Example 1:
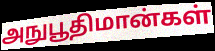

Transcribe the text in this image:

அநுபூதிமான்கள்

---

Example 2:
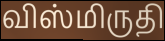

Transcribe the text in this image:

விஸ்மிருதி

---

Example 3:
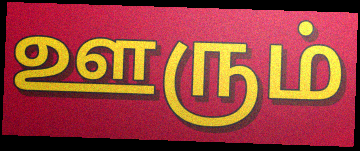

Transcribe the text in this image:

ஊரும்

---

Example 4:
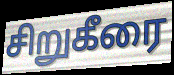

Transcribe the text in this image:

சிறுகீரை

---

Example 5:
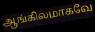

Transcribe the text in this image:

ஆங்கிலமாகவே